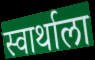
स्वार्थाला